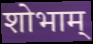
शोभाम्